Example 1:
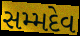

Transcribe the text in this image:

સમ્મદેવ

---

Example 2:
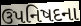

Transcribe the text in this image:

ઉપનિષદના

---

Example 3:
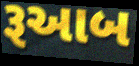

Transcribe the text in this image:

રૂઆબ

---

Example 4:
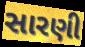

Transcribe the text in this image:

સારણી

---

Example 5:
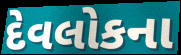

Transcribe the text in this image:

દેવલોકના